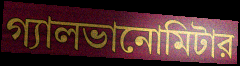
গ্যালভানোমিটার